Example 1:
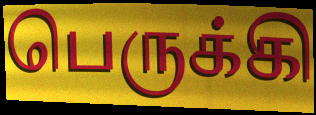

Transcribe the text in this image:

பெருக்கி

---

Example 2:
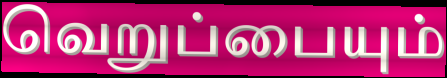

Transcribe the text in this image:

வெறுப்பையும்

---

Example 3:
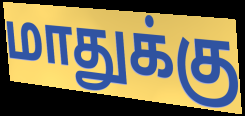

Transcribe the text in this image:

மாதுக்கு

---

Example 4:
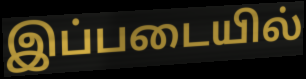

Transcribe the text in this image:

இப்படையில்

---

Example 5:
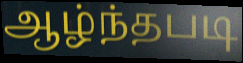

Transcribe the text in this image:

ஆழ்ந்தபடி